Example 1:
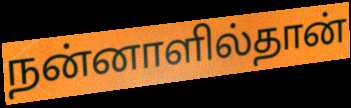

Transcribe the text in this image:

நன்னாளில்தான்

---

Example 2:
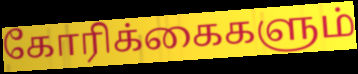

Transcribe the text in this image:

கோரிக்கைகளும்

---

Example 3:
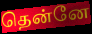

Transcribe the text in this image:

தென்னே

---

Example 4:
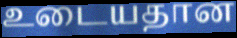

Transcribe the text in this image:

உடையதான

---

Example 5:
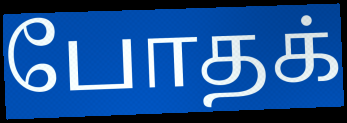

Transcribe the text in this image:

போதக்